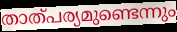
താത്പര്യമുണ്ടെന്നും